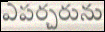
ఎపర్చరును